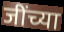
जींच्या